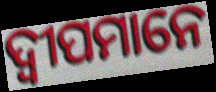
ଦ୍ୱୀପମାନେ